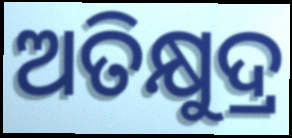
ଅତିକ୍ଷୁଦ୍ର